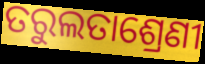
ତରୁଲତାଶ୍ରେଣୀ